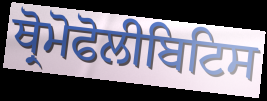
ਥ੍ਰੋਮੋਫੋਲੀਬਿਟਿਸ